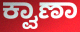
ಕ್ವಾಣಾ